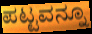
ಪಟ್ಟವನ್ನೂ